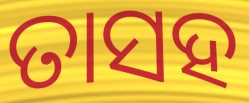
ତାସହ